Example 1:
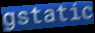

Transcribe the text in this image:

gstatic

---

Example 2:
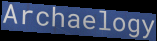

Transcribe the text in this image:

Archaelogy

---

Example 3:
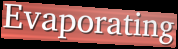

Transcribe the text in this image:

Evaporating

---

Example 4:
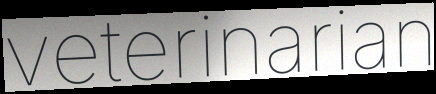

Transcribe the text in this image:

veterinarian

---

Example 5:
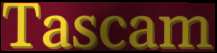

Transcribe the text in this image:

Tascam